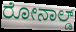
ರೋನಾಲ್ಡ್